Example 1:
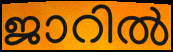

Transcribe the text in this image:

ജാറിൽ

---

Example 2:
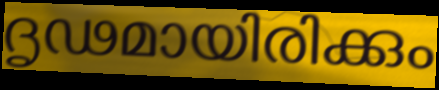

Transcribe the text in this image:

ദൃഢമായിരിക്കും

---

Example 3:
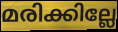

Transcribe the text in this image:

മരിക്കില്ലേ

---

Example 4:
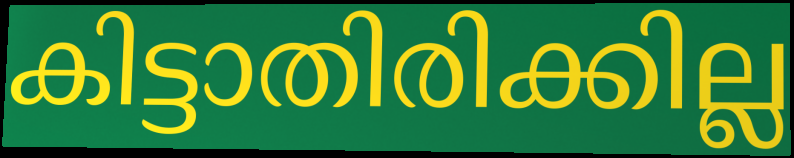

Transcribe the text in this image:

കിട്ടാതിരിക്കില്ല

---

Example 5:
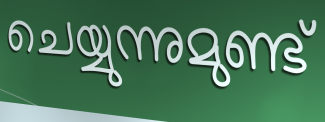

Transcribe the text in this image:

ചെയ്യുന്നുമുണ്ട്